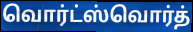
வொர்ட்ஸ்வொர்த்